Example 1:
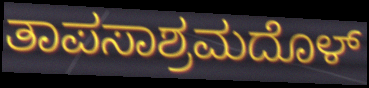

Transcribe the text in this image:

ತಾಪಸಾಶ್ರಮದೊಳ್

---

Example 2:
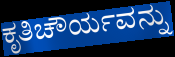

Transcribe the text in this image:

ಕೃತಿಚೌರ್ಯವನ್ನು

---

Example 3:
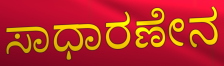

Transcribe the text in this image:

ಸಾಧಾರಣೇನ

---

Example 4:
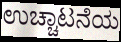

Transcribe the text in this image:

ಉಚ್ಚಾಟನೆಯ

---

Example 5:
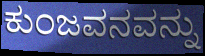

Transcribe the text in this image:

ಕುಂಜವನವನ್ನು